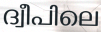
ദ്വീപിലെ